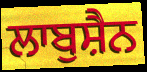
ਲਾਬੁਸ਼ੈਨ